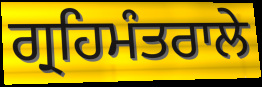
ਗ੍ਰਹਿਮੰਤਰਾਲੇ